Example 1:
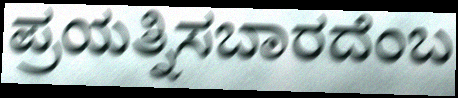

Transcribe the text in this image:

ಪ್ರಯತ್ನಿಸಬಾರದೆಂಬ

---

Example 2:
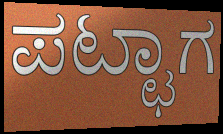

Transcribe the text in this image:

ಪಟ್ಟಾಗ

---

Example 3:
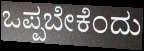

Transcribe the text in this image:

ಒಪ್ಪಬೇಕೆಂದು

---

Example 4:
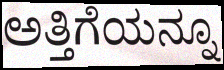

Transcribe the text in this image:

ಅತ್ತಿಗೆಯನ್ನೂ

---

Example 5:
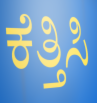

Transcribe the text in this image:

ಕೆತ್ತಿಸಿ